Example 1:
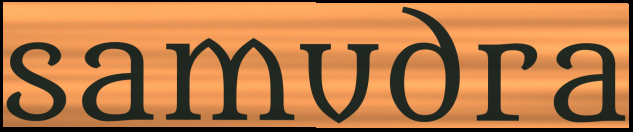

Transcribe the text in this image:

samudra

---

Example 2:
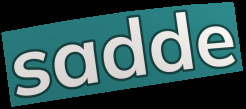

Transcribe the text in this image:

sadde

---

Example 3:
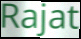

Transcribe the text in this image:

Rajat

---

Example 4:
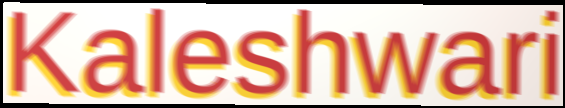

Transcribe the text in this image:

Kaleshwari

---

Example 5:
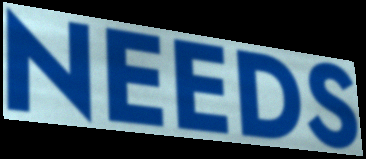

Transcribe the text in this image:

NEEDS